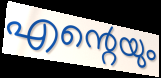
എന്റെയും